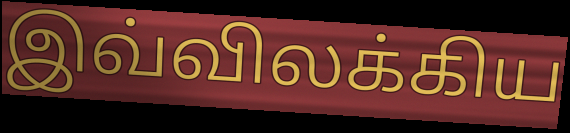
இவ்விலக்கிய